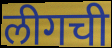
लीगची